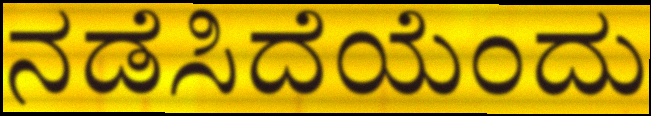
ನಡೆಸಿದೆಯೆಂದು